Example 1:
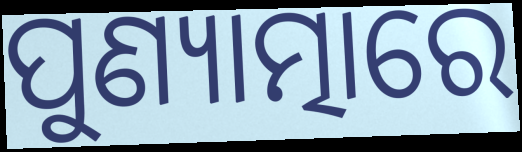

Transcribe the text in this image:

ପୁଣ୍ୟାତ୍ମାରେ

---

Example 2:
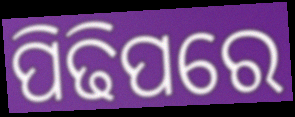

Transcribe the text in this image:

ପିଢିପରେ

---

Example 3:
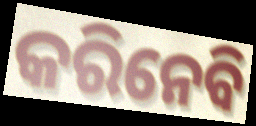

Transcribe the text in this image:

କରିନେବି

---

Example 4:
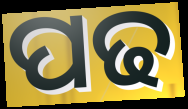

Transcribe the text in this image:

ପଢ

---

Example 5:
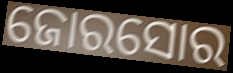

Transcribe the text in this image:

ଜୋରସୋର